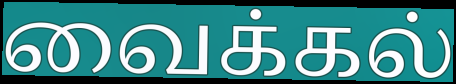
வைக்கல்